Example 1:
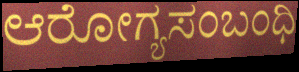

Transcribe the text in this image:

ಆರೋಗ್ಯಸಂಬಂಧಿ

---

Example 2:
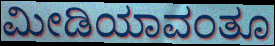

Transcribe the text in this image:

ಮೀಡಿಯಾವಂತೂ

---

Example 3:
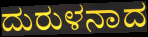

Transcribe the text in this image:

ದುರುಳನಾದ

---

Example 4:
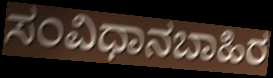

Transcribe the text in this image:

ಸಂವಿಧಾನಬಾಹಿರ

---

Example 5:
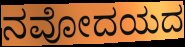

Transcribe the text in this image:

ನವೋದಯದ